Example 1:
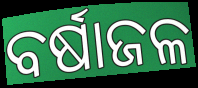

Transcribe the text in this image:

ବର୍ଷାଜଳ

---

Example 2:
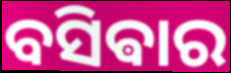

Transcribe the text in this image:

ବସିଵାର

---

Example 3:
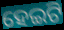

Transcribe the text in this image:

ହେଇଟି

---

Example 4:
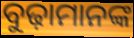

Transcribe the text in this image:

ବୁଢ଼ାମାନଙ୍କ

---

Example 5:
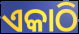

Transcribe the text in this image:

ଏକାଠି